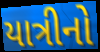
યાત્રીનો